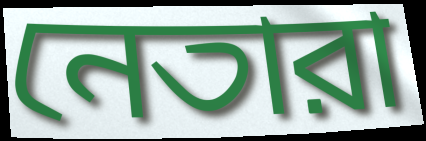
নেতারা